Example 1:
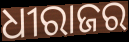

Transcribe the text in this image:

ଧୀରାଜର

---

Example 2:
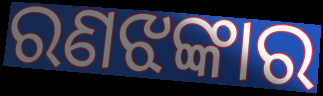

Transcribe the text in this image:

ରଣଝଙ୍କାର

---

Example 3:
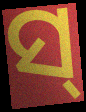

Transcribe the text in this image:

ସ୍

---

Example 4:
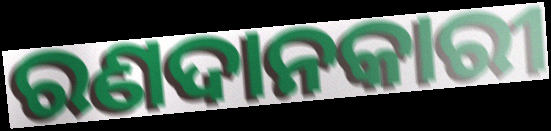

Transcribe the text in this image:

ରଣଦାନକାରୀ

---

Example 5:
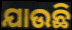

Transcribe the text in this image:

ଯାଉଛି